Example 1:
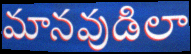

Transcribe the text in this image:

మానవుడిలా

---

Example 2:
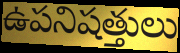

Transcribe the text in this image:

ఉపనిషత్తులు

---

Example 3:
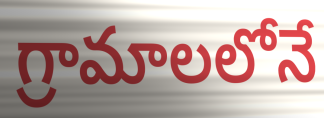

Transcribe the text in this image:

గ్రామాలలోనే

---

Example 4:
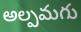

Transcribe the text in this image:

అల్పమగు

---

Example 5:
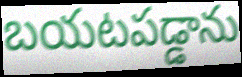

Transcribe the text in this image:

బయటపడ్డాను